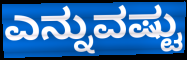
ಎನ್ನುವಷ್ಟು